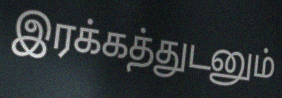
இரக்கத்துடனும்